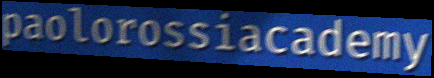
paolorossiacademy